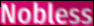
Nobless